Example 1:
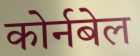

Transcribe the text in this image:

कोर्नबेल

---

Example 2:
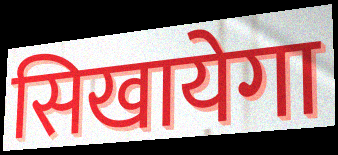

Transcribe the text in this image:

सिखायेगा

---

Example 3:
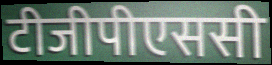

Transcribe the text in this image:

टीजीपीएससी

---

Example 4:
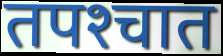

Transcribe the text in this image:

तपश्चात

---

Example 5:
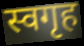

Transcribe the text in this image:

स्वगृह